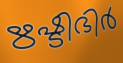
ഋഷ്ടിഭിർ